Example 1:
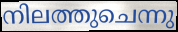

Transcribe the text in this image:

നിലത്തുചെന്നു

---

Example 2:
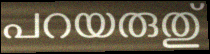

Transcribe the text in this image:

പറയരുതു്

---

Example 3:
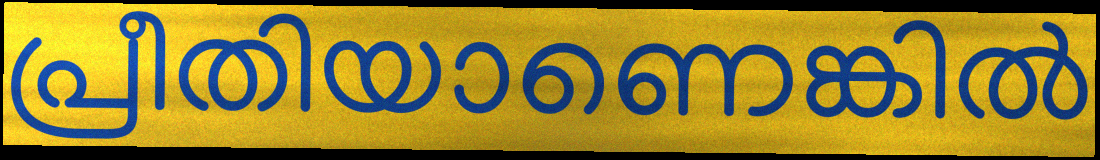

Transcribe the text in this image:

പ്രീതിയാണെങ്കിൽ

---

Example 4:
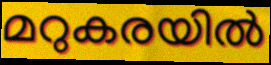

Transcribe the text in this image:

മറുകരയിൽ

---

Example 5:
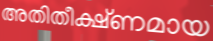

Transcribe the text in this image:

അതിതീക്ഷ്ണമായ